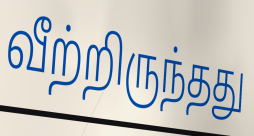
வீற்றிருந்தது